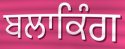
ਬਲਾਕਿੰਗ